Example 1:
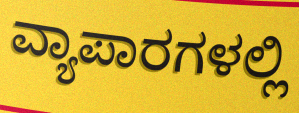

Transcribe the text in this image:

ವ್ಯಾಪಾರಗಳಲ್ಲಿ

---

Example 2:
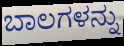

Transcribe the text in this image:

ಬಾಲಗಳನ್ನು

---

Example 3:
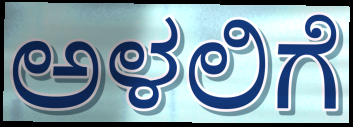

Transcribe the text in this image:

ಅಳಲಿಗೆ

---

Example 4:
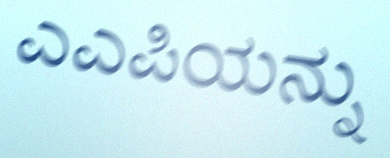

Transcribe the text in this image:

ಎಎಪಿಯನ್ನು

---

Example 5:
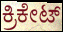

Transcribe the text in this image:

ಕ್ರಿಕೇಟ್